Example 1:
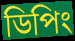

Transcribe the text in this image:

ডিপিং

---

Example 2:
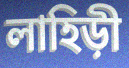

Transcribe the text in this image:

লাহিড়ী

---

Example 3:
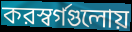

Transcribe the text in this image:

করস্বর্গগুলোয়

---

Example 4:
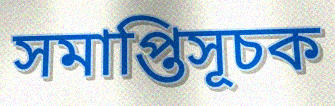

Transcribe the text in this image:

সমাপ্তিসূচক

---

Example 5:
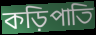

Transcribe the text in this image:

কড়িপাতি